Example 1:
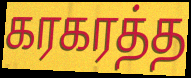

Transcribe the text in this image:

கரகரத்த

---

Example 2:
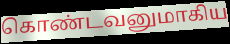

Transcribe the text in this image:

கொண்டவனுமாகிய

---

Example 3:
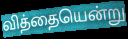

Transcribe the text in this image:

வித்தையென்று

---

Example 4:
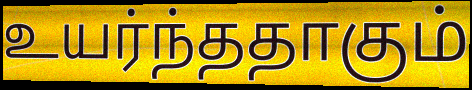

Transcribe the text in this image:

உயர்ந்ததாகும்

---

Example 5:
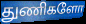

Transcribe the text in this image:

துணிகளோ